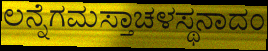
ಲನ್ನೆಗಮಸ್ತಾಚಳಸ್ಥನಾದಂ